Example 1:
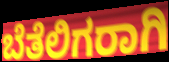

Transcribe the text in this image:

ಬೆತೆಲಿಗರಾಗಿ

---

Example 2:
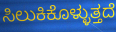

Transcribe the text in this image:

ಸಿಲುಕಿಕೊಳ್ಳುತ್ತದೆ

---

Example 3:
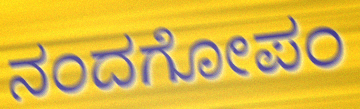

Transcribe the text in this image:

ನಂದಗೋಪಂ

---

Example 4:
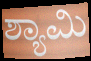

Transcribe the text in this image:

ಶ್ಯಾಮಿ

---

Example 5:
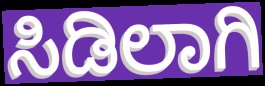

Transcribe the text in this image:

ಸಿಡಿಲಾಗಿ